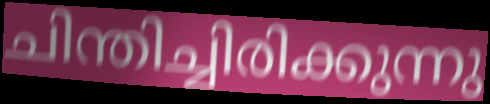
ചിന്തിച്ചിരിക്കുന്നു